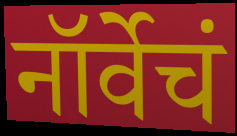
नॉर्वेचं